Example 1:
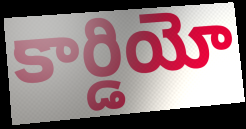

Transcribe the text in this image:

కార్డియో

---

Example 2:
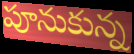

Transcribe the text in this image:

పూనుకున్న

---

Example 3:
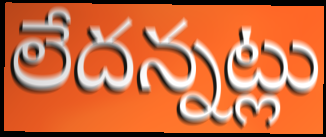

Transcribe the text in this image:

లేదన్నట్లు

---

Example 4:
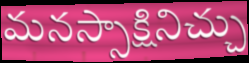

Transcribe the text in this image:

మనస్సాక్షినిచ్చు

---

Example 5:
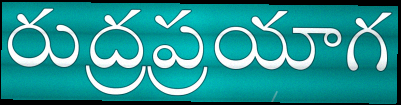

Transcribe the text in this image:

రుద్రప్రయాగ